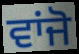
ਵਾਂਜੋ